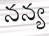
నన్య